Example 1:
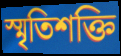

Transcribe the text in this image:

স্মৃতিশক্তি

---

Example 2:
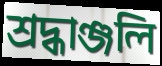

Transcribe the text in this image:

শ্ৰদ্ধাঞ্জলি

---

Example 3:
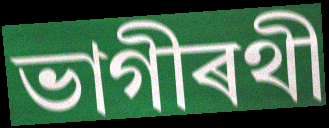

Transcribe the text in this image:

ভাগীৰথী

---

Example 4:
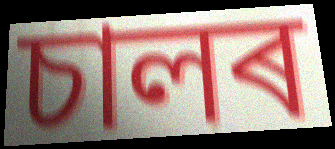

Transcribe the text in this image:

চালৰ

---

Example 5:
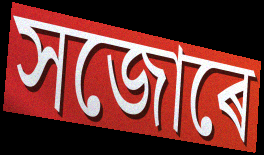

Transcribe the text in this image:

সজোৰে